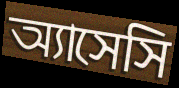
অ্যাসেসি